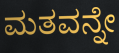
ಮತವನ್ನೇ